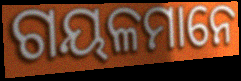
ଗୟଳମାନେ